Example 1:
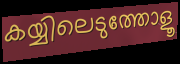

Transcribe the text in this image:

കയ്യിലെടുത്തോളൂ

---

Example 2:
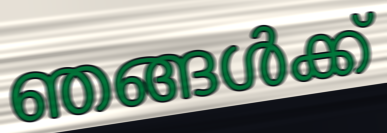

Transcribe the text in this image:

ഞങ്ങൾക്ക്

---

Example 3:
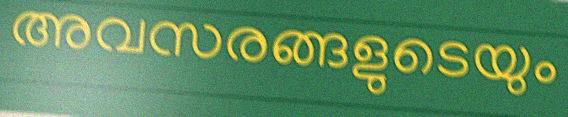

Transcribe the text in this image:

അവസരങ്ങളുടെയും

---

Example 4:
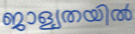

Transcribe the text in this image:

ജാള്യതയിൽ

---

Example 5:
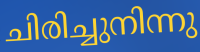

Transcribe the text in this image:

ചിരിച്ചുനിന്നു